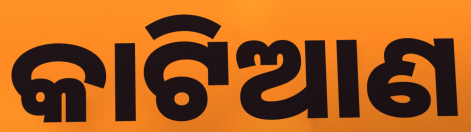
କାଟିଆଣ